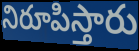
నిరూపిస్తారు